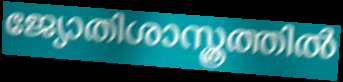
ജ്യോതിശാസ്ത്രത്തിൽ